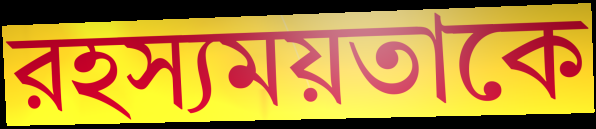
রহস্যময়তাকে